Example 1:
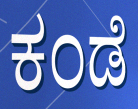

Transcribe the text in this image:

ಕಂಡೆ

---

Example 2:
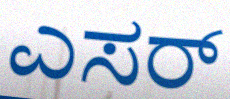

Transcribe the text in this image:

ಎಸರ್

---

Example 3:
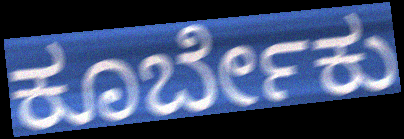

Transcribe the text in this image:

ಕೂರ್ಬೇಕು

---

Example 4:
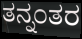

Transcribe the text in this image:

ತನ್ನಂತರ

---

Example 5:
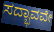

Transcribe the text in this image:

ಸದ್ಭಾವವೇ